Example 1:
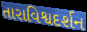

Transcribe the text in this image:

તારાવિશ્વદર્શન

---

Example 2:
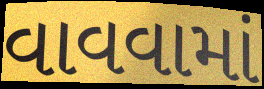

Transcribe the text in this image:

વાવવામાં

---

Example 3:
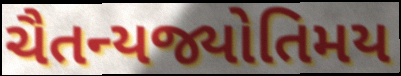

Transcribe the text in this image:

ચૈતન્યજ્યોતિમય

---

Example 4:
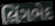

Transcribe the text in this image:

લિંગભેદ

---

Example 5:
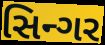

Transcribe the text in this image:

સિન્ગર